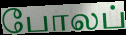
போலப்